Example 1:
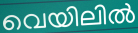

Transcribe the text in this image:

വെയിലിൽ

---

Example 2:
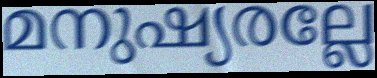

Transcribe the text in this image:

മനുഷ്യരല്ലേ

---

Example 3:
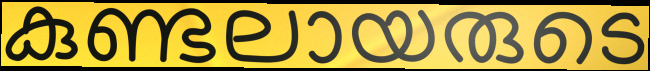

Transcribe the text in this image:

കുണ്ടലായരുടെ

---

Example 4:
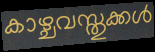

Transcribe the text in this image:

കാഴ്ചവസ്തുക്കൾ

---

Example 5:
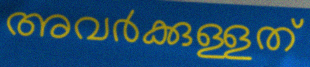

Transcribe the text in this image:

അവർക്കുള്ളത്